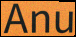
Anu